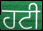
ਹਟੀ